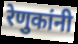
रेणुकांनी